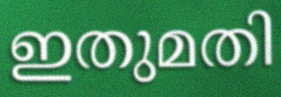
ഇതുമതി